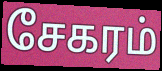
சேகரம்